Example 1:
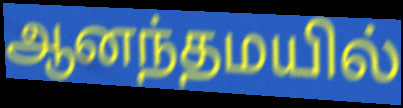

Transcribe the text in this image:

ஆனந்தமயில்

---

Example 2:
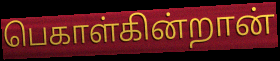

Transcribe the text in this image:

பெகாள்கின்றான்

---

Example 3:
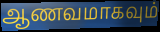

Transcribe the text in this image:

ஆணவமாகவும்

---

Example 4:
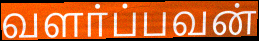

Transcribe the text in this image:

வளர்ப்பவன்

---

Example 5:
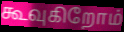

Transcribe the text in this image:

கூவுகிறோம்